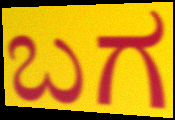
ಬಗ